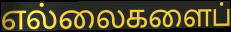
எல்லைகளைப்